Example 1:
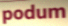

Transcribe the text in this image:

podum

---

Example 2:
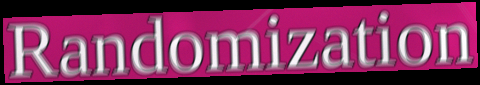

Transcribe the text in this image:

Randomization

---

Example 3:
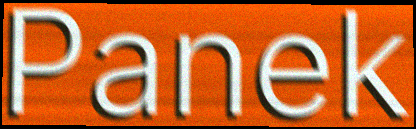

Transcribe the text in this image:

Panek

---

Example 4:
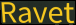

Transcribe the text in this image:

Ravet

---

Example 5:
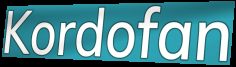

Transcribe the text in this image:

Kordofan